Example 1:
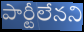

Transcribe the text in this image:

పార్టీలేనని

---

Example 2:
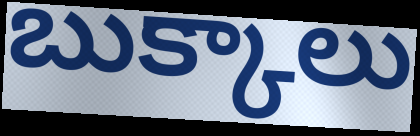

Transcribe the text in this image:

బుక్కాలు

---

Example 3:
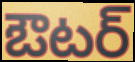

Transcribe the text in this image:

ఔటర్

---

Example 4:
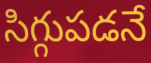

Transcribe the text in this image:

సిగ్గుపడనే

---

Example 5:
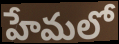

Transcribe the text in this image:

హేమలో